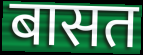
बासत